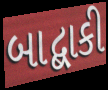
બાદ્બાકી